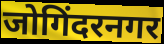
जोगिंदरनगर